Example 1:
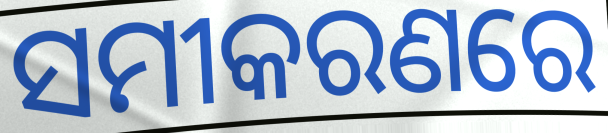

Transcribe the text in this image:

ସମୀକରଣରେ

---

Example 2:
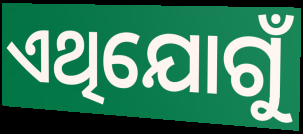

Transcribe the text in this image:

ଏଥିଯୋଗୁଁ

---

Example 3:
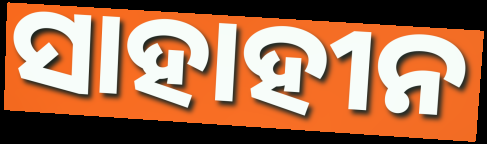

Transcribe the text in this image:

ସାହାହୀନ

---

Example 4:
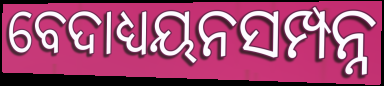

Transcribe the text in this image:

ବେଦାଧ୍ୟୟନସମ୍ପନ୍ନ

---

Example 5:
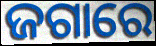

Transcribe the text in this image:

ଜଗାରେ